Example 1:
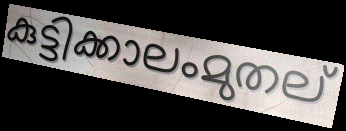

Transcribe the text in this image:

കുട്ടിക്കാലംമുതല്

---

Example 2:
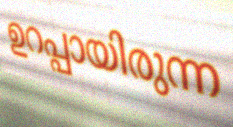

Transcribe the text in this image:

ഉറപ്പായിരുന്ന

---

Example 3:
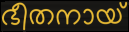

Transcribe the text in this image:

ഭീതനായ്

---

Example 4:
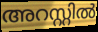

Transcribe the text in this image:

അറസ്റ്റിൽ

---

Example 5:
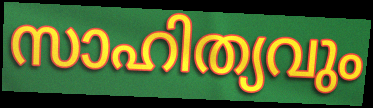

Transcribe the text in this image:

സാഹിത്യവും